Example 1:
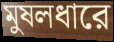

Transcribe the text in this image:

মুষলধারে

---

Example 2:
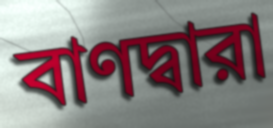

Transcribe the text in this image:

বাণদ্বারা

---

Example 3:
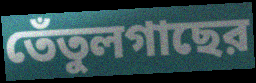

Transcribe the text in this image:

তেঁতুলগাছের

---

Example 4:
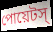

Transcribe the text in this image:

পোয়েটস্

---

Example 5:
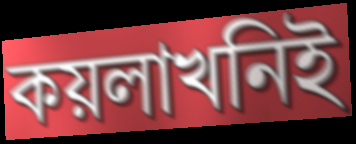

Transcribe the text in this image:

কয়লাখনিই